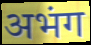
अभंग